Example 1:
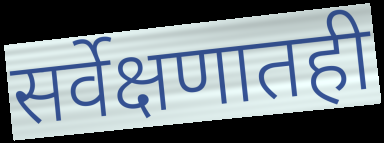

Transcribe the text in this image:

सर्वेक्षणातही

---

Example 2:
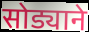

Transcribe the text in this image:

सोड्याने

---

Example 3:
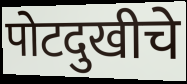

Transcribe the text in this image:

पोटदुखीचे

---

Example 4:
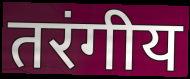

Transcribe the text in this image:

तरंगीय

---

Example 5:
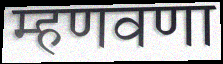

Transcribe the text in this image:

म्हणवणा